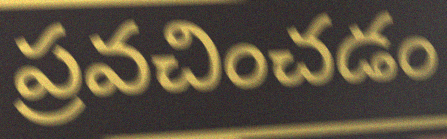
ప్రవచించడం